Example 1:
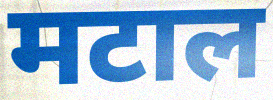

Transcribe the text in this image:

मटाल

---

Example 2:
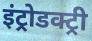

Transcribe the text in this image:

इंट्रोडक्ट्री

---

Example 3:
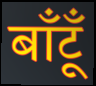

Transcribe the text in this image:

बाँटूँ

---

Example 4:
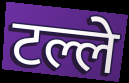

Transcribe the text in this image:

टल्ले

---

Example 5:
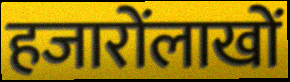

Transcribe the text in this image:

हजारोंलाखों